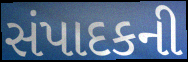
સંપાદકની